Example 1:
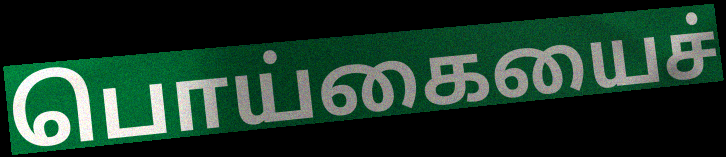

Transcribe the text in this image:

பொய்கையைச்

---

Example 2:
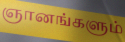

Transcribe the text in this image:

ஞானங்களும்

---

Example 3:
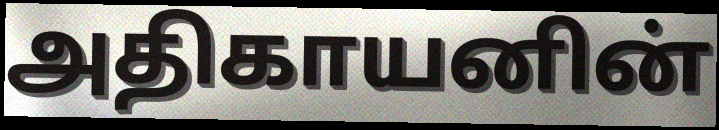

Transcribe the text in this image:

அதிகாயனின்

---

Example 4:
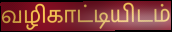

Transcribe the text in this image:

வழிகாட்டியிடம்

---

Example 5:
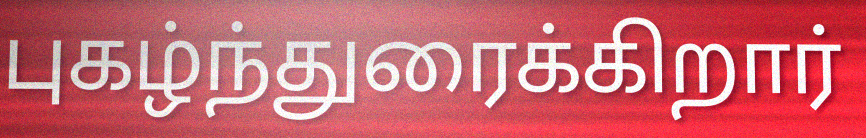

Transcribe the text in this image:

புகழ்ந்துரைக்கிறார்